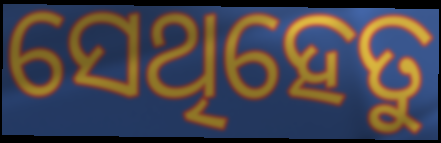
ସେଥିହେତୁ